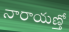
నారాయణ్తో